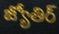
జ్యోతిర్